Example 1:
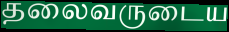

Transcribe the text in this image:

தலைவருடைய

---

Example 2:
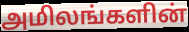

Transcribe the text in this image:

அமிலங்களின்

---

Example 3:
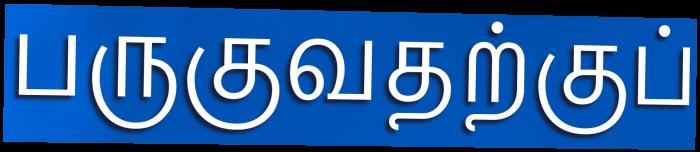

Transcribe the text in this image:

பருகுவதற்குப்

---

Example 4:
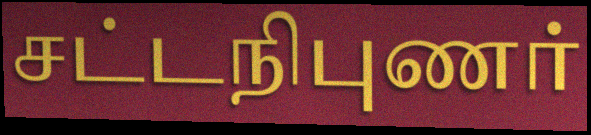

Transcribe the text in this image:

சட்டநிபுணர்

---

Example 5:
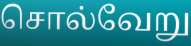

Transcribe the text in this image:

சொல்வேறு